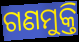
ଗଣମୁକ୍ତି